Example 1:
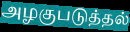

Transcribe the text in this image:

அழகுபடுத்தல்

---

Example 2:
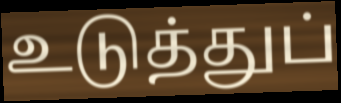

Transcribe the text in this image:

உடுத்துப்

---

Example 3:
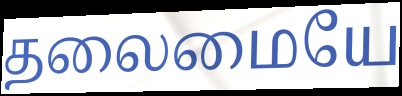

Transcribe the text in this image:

தலைமையே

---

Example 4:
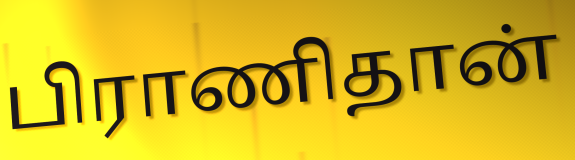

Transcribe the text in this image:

பிராணிதான்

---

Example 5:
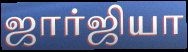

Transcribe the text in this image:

ஜார்ஜியா